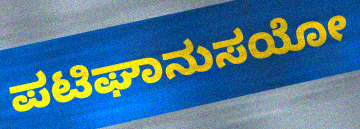
ಪಟಿಘಾನುಸಯೋ